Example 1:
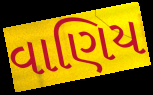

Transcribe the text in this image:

વાણિય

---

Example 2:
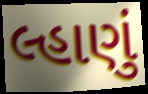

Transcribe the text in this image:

લ્હાણું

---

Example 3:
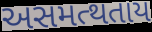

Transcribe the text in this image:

અસમત્થતાય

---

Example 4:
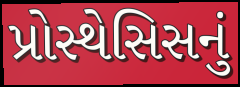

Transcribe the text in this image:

પ્રોસ્થેસિસનું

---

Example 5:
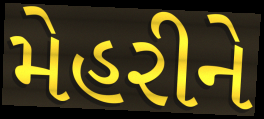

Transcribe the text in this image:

મેહરીને